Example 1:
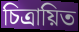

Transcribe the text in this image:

চিত্রায়িত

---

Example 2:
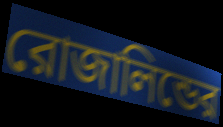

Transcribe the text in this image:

রোজালিন্ডের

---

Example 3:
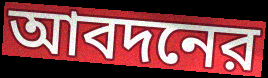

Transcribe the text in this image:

আবদনের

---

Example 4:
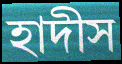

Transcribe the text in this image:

হাদীস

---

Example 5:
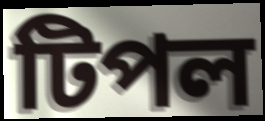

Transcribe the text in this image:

টিপল